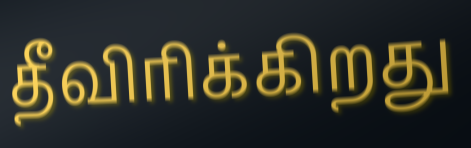
தீவிரிக்கிறது